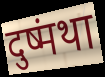
दुष्मंथा